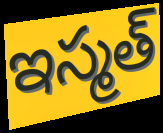
ఇస్మత్